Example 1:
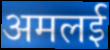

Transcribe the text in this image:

अमलई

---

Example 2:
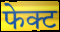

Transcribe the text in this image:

फेक्ट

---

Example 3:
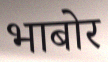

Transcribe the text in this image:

भाबोर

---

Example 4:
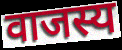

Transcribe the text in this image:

वाजस्य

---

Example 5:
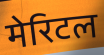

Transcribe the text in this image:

मेरिटल